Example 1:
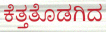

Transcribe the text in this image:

ಕೆತ್ತತೊಡಗಿದ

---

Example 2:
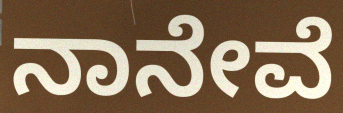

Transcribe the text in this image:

ನಾನೇವೆ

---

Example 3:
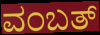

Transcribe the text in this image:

ವಂಬತ್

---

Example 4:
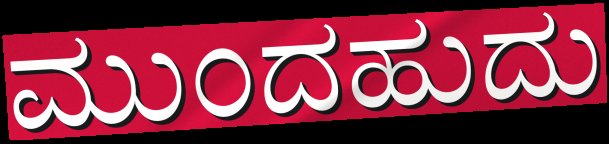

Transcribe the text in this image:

ಮುಂದಹುದು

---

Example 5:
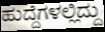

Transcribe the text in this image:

ಹುದ್ದೆಗಳಲ್ಲಿದ್ದು